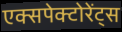
एक्सपेक्टोरेंट्स